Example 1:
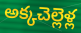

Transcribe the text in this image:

అక్కచెల్లెళ్ల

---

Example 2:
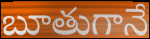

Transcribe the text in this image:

బూతుగానే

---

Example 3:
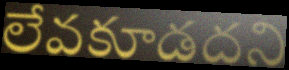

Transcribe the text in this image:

లేవకూడదని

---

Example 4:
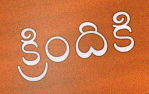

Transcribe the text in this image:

క్రిందికి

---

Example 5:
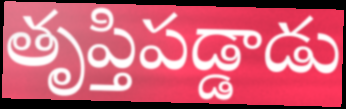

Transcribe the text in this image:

తృప్తిపడ్డాడు